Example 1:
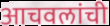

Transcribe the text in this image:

आचवलांची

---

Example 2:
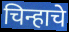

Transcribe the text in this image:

चिन्हाचे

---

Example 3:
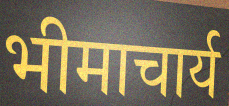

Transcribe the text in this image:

भीमाचार्य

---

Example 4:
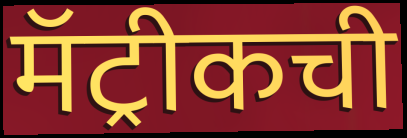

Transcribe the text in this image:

मॅट्रीकची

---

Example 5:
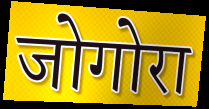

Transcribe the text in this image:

जोगोरा